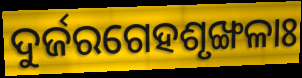
ଦୁର୍ଜରଗେହଶୃଙ୍ଖଳାଃ